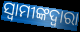
ସ୍ୱାମୀଙ୍କଦ୍ୱାରା